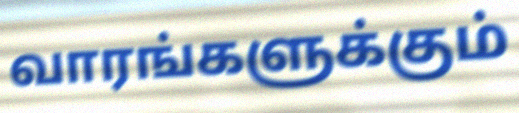
வாரங்களுக்கும்